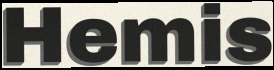
Hemis